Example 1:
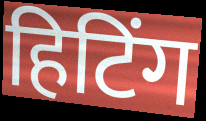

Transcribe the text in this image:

हिटिंग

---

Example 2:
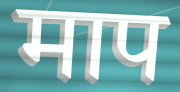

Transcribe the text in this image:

माप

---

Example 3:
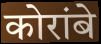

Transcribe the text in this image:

कोरांबे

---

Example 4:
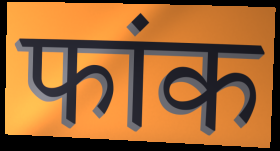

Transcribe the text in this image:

फांक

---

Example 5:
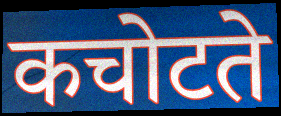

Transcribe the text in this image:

कचोटते